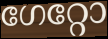
ഗേറ്റോ